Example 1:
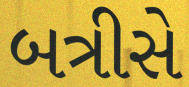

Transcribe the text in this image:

બત્રીસે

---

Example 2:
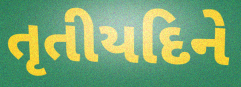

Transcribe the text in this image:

તૃતીયદિને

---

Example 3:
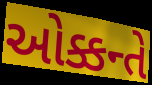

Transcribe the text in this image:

ઓક્કન્તે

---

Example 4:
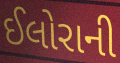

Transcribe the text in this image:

ઈલોરાની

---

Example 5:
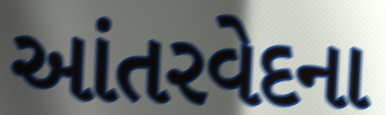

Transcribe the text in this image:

આંતરવેદના